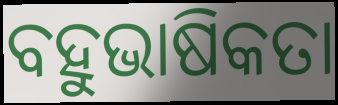
ବହୁଭାଷିକତା